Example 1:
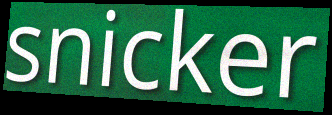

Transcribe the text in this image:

snicker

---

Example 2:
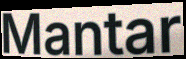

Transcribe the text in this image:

Mantar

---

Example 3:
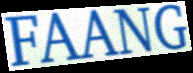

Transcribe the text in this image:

FAANG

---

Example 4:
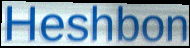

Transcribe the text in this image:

Heshbon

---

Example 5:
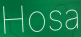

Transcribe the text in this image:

Hosa